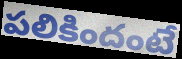
పలికిందంటే